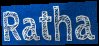
Ratha